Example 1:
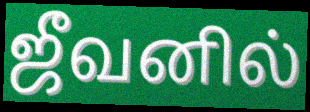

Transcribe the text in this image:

ஜீவனில்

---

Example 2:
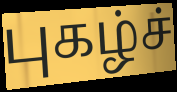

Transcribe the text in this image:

புகழ்ச்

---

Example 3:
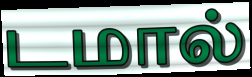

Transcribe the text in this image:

டமால்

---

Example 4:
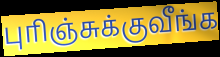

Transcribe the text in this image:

புரிஞ்சுக்குவீங்க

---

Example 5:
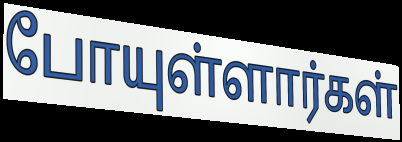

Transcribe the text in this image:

போயுள்ளார்கள்